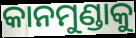
କାନମୁଣ୍ଡାକୁ